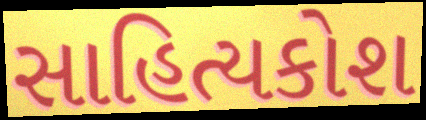
સાહિત્યકોશ